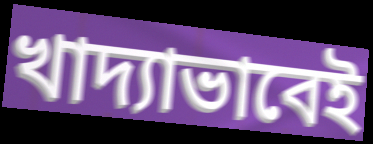
খাদ্যাভাবেই